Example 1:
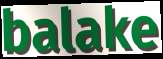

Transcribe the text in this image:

balake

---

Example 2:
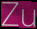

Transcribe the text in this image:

Zu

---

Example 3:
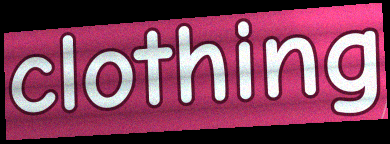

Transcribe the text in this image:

clothing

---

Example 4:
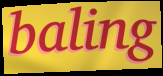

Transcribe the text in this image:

baling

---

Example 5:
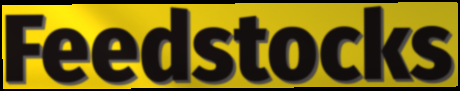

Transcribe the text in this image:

Feedstocks